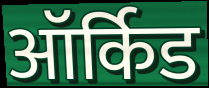
ऑर्किड